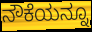
ನೌಕೆಯನ್ನೂ